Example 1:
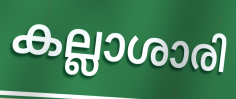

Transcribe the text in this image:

കല്ലാശാരി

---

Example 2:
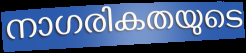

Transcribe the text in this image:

നാഗരികതയുടെ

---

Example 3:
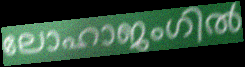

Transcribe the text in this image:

ലോഹാജംഗിൽ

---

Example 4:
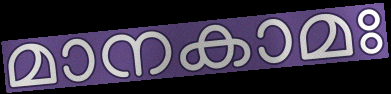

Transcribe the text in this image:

മാനകാമഃ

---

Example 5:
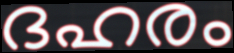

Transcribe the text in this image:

ദഹരം